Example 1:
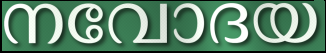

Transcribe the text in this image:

നവോദയ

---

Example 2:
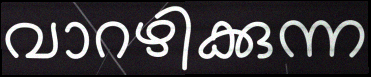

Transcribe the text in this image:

വാറഴിക്കുന്ന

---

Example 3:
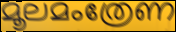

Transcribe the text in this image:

മൂലമംത്രേണ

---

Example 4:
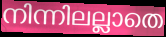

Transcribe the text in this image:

നിന്നിലല്ലാതെ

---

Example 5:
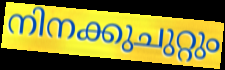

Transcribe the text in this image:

നിനക്കുചുറ്റും